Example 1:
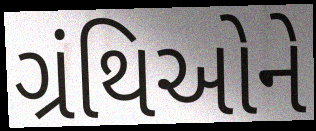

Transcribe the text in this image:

ગ્રંથિઓને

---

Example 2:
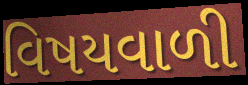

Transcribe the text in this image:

વિષયવાળી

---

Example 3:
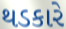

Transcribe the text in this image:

થડકારે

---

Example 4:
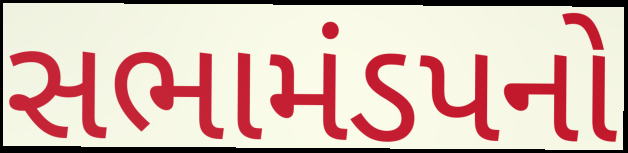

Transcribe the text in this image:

સભામંડપનો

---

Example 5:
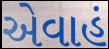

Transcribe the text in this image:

એવાહં